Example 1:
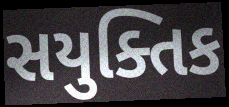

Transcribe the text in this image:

સયુક્તિક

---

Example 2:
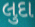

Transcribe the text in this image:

લુદા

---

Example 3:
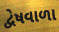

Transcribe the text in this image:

દ્વેષવાળા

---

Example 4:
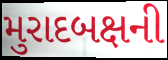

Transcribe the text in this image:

મુરાદબક્ષની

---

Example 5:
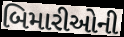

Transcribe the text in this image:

બિમારીઓની